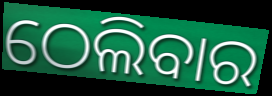
ଠେଲିବାର